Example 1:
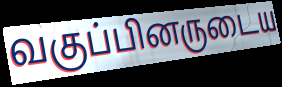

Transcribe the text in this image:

வகுப்பினருடைய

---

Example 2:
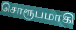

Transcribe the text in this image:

சொரூபமாகி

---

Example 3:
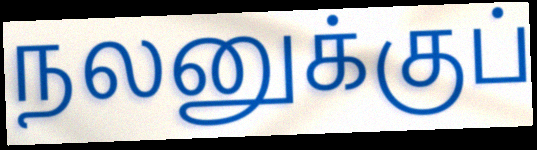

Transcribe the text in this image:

நலனுக்குப்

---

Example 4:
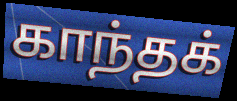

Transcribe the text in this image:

காந்தக்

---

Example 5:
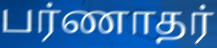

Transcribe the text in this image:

பர்ணாதர்